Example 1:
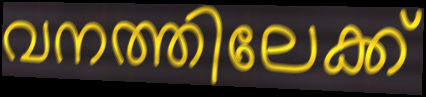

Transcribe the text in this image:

വനത്തിലേക്ക്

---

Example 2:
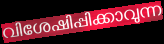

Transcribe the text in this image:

വിശേഷിപ്പിക്കാവുന്ന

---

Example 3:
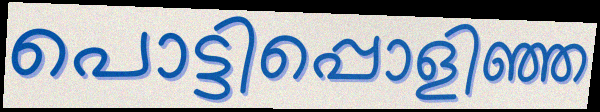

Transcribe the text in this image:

പൊട്ടിപ്പൊളിഞ്ഞ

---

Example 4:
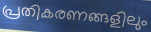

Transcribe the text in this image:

പ്രതികരണങ്ങളിലും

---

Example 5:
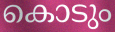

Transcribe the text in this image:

കൊടും